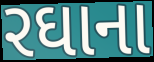
રઘાના